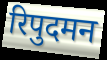
रिपुदमन